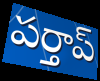
పర్తాప్